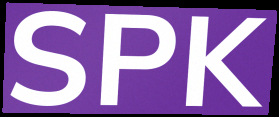
SPK